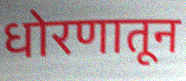
धोरणातून